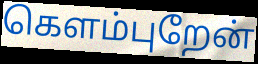
கெளம்புறேன்